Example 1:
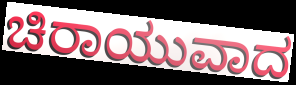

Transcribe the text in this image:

ಚಿರಾಯುವಾದ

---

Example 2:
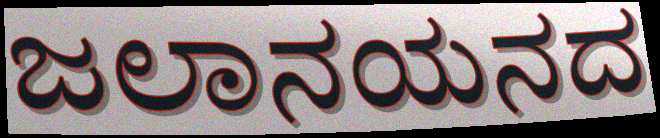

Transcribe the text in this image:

ಜಲಾನಯನದ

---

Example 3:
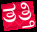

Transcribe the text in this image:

ತತ್ತಿ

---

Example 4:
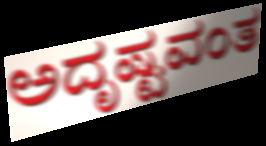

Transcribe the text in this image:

ಅದೃಷ್ಟವಂತ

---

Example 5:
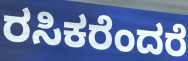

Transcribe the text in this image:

ರಸಿಕರೆಂದರೆ